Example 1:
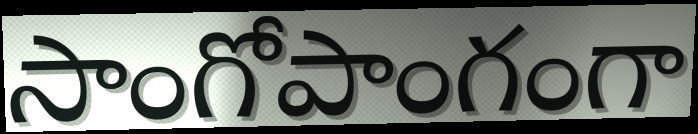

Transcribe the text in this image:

సాంగోపాంగంగా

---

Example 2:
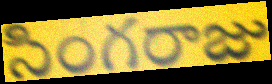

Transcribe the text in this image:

సింగరాజు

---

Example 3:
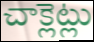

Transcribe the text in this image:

చాక్లెట్లు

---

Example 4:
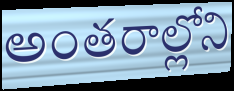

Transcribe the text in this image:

అంతరాల్లోని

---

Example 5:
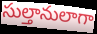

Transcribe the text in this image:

సుల్తానులాగా